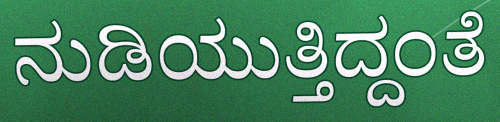
ನುಡಿಯುತ್ತಿದ್ದಂತೆ